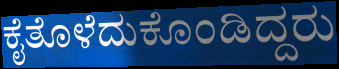
ಕೈತೊಳೆದುಕೊಂಡಿದ್ದರು